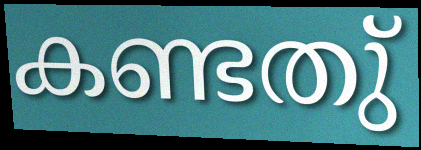
കണ്ടതു്